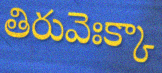
తిరువెఃక్కా